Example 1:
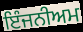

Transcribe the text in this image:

ਇੰਜਨੀਅਮ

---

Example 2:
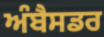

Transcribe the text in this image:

ਅੰਬੈਸਡਰ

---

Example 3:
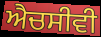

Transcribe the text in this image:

ਐਚਸੀਵੀ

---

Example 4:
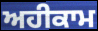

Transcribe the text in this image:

ਅਹੀਕਾਮ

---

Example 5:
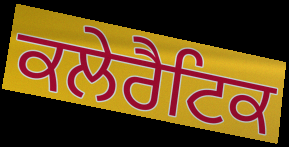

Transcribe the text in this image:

ਕਲੇਰੈਟਿਕ